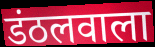
डंठलवाला